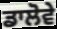
ਡਾਲੋਵੇ